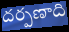
దర్పణాది